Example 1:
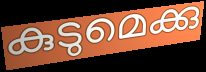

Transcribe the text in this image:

കുടുമെക്കു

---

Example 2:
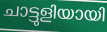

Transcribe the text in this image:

ചാട്ടുളിയായി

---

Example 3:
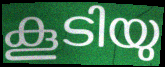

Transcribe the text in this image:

കൂടിയു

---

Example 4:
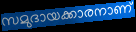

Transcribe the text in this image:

സമുദായക്കാരനാണ്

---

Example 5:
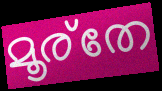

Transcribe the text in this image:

മൂര്തേ